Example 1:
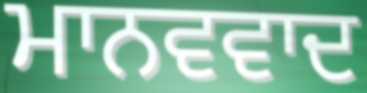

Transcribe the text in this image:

ਮਾਨਵਵਾਦ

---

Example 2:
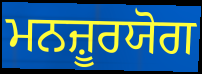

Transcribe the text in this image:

ਮਨਜ਼ੂਰਯੋਗ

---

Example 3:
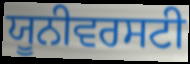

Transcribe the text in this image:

ਯੂਨੀਵਰਸਟੀ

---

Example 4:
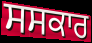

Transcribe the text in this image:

ਸਸਕਾਰ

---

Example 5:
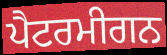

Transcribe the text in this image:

ਪੈਟਰਮੀਗਨ